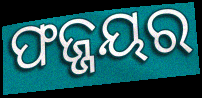
ଫଜ୍ଜୟର